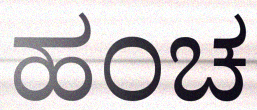
ಹಂಚ